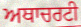
ਅਥਾਚਰਟੀ